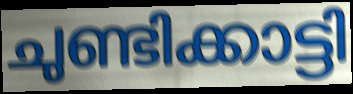
ചുണ്ടിക്കാട്ടി